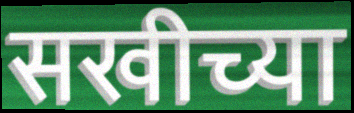
सखीच्या